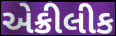
એક્રીલીક